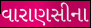
વારાણસીના